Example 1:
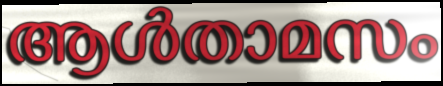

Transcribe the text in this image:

ആൾതാമസം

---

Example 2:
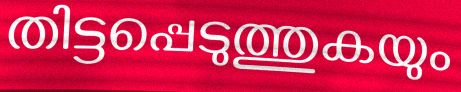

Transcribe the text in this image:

തിട്ടപ്പെടുത്തുകയും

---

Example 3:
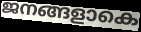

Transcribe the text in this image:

ജനങ്ങളാകെ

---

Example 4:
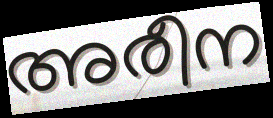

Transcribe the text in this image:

അരീന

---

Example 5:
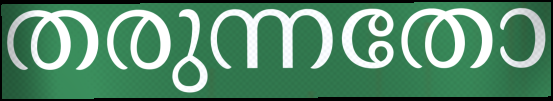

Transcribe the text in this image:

തരുന്നതോ